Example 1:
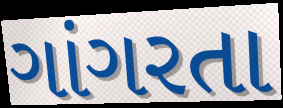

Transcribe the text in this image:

ગાંગરતા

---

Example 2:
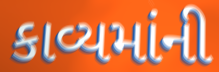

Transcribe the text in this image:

કાવ્યમાંની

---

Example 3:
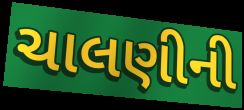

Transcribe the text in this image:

ચાલણીની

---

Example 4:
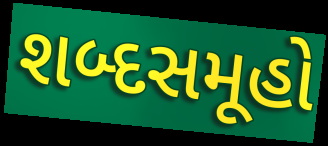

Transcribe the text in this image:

શબ્દસમૂહો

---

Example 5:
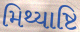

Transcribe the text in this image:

મિથ્યાષ્ટિ